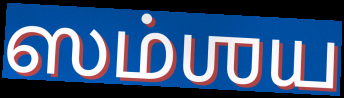
ஸம்ஶய